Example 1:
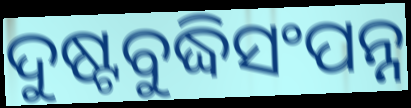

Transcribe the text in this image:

ଦୁଷ୍ଟବୁଦ୍ଧିସଂପନ୍ନ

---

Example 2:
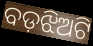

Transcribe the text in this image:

ବଡ଼ଝିଅଟି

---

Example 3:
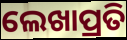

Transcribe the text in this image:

ଲେଖାପ୍ରତି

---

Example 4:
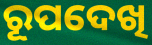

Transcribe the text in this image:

ରୂପଦେଖି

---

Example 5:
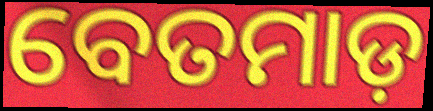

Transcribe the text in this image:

ବେତମାଡ଼